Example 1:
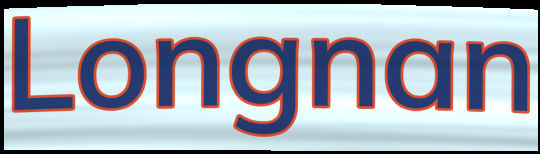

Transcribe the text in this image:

Longnan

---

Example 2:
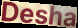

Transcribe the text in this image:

Desha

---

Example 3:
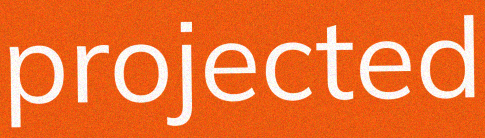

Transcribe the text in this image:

projected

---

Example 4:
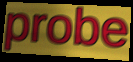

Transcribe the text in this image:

probe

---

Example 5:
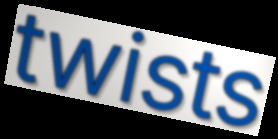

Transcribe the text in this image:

twists